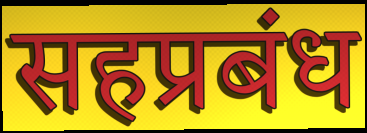
सहप्रबंध